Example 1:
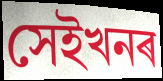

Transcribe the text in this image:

সেইখনৰ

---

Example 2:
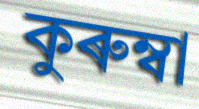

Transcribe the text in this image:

কুৰুম্বা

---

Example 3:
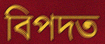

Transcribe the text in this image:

বিপদত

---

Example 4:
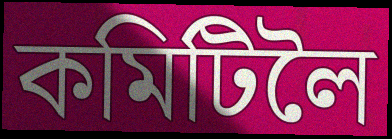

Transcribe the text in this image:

কমিটিলৈ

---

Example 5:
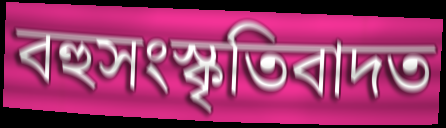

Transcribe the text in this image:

বহুসংস্কৃতিবাদত